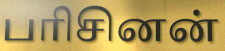
பரிசினன்